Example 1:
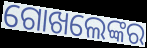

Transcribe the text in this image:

ଗୋଖଲେଙ୍କର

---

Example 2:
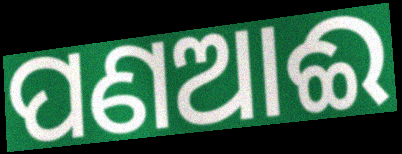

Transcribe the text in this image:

ପଣଆଈ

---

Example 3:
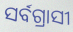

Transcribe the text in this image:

ସର୍ବଗ୍ରାସୀ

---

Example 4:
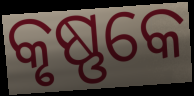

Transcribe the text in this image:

କୃଷ୍ଣକେ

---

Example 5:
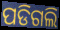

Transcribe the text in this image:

ପଡିଗଲି